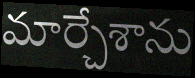
మార్చేశాను